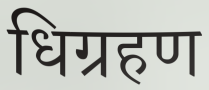
धिग्रहण